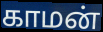
காமன்